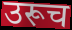
उरूच